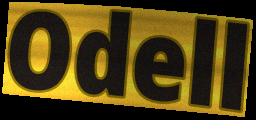
Odell